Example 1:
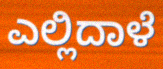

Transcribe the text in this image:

ಎಲ್ಲಿದಾಳೆ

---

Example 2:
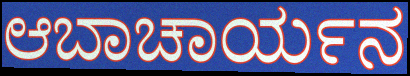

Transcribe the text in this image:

ಆಬಾಚಾರ್ಯನ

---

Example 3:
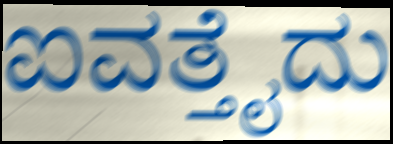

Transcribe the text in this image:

ಐವತ್ತೈದು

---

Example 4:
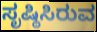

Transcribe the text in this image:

ಸೃಷ್ಠಿಸಿರುವ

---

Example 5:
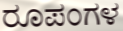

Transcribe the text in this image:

ರೂಪಂಗಳ